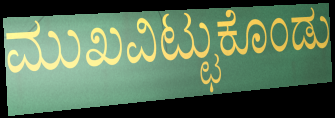
ಮುಖವಿಟ್ಟುಕೊಂಡು